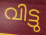
വിട്ടു